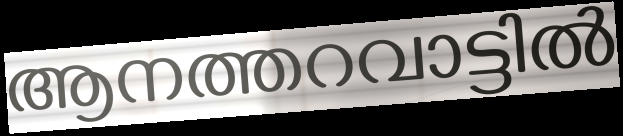
ആനത്തറവാട്ടിൽ